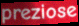
preziose